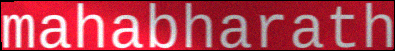
mahabharath